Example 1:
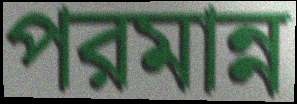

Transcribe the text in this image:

পরমান্ন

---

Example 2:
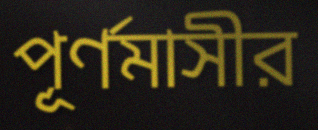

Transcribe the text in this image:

পূর্ণমাসীর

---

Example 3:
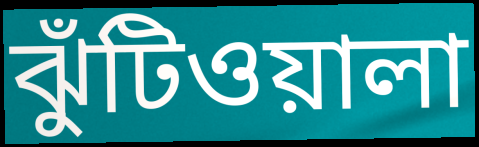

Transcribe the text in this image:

ঝুঁটিওয়ালা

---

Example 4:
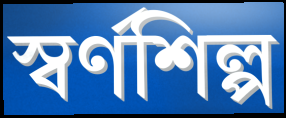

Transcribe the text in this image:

স্বর্ণশিল্প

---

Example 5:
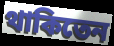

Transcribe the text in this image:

থাকিতেন